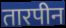
तारपीन